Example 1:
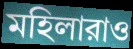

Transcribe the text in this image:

মহিলারাও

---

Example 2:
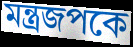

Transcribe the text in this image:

মন্ত্রজপকে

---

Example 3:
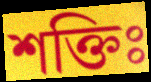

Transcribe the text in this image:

শক্তিঃ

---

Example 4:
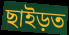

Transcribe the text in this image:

ছাইড়ত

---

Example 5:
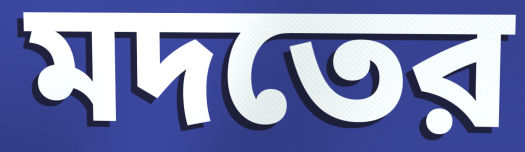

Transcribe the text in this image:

মদতের